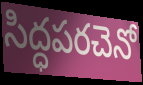
సిద్ధపరచెనో